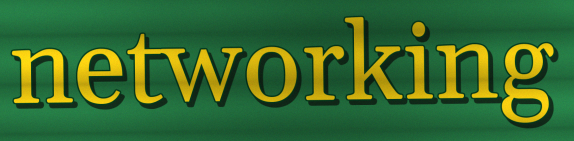
networking